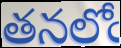
తనలోఁ